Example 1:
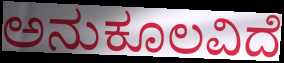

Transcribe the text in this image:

ಅನುಕೂಲವಿದೆ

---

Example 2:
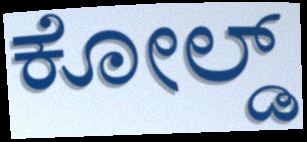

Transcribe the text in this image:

ಕೋಲ್ಡ್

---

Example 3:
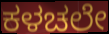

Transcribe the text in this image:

ಕಳಚಲೇ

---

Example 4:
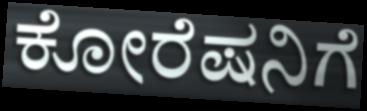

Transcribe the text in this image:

ಕೋರೆಷನಿಗೆ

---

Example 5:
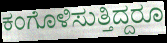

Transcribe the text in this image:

ಕಂಗೊಳಿಸುತ್ತಿದ್ದರೂ